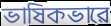
ভাষিকভাৱে